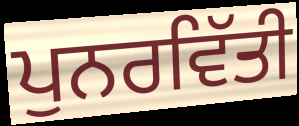
ਪੁਨਰਵਿੱਤੀ